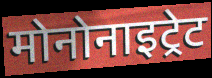
मोनोनाइट्रेट